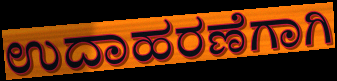
ಉದಾಹರಣೆಗಾಗಿ